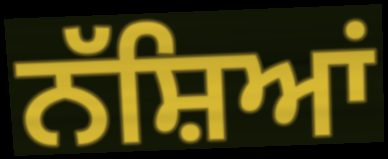
ਨੱਸ਼ਿਆਂ